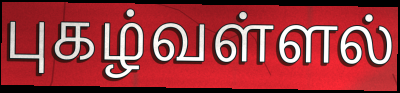
புகழ்வள்ளல்